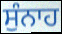
ਸੁੰਨਾਹ